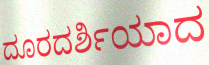
ದೂರದರ್ಶಿಯಾದ